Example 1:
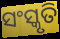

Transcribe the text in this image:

ସଂସ୍କୃତି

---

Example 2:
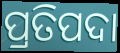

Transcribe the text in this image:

ପ୍ରତିପଦା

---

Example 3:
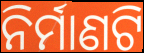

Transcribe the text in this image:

ନିର୍ମାଣଟି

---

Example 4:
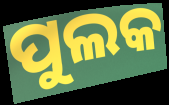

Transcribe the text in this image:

ପୁଲକ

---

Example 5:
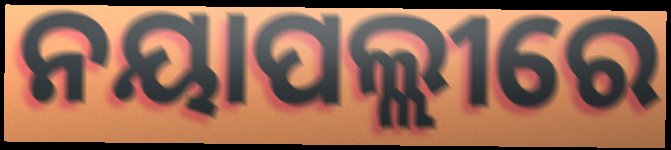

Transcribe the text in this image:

ନୟାପଲ୍ଲୀରେ